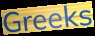
Greeks